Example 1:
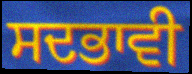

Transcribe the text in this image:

ਸਦਭਾਵੀ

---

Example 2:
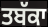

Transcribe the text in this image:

ਤਬੱਕਾ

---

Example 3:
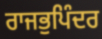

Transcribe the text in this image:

ਰਾਜਭੁਪਿੰਦਰ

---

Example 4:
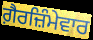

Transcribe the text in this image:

ਗ਼ੈਰਜ਼ਿੰਮੇਵਾਰ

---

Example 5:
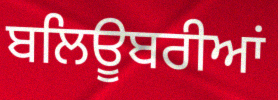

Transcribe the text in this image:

ਬਲਿਊਬਰੀਆਂ